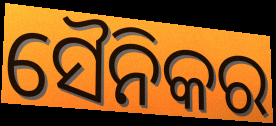
ସୈନିକର